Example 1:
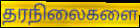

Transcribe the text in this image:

தரநிலைகளை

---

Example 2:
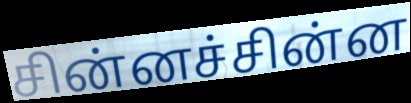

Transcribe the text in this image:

சின்னச்சின்ன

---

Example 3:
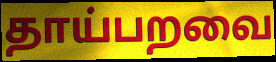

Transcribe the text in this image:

தாய்பறவை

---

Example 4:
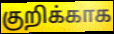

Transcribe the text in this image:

குறிக்காக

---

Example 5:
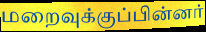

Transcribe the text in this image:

மறைவுக்குப்பின்னர்